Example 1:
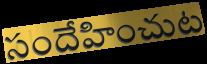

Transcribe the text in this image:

సందేహించుట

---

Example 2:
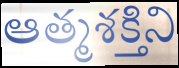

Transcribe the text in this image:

ఆత్మశక్తిని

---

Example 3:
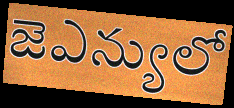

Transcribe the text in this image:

జెఎన్యులో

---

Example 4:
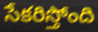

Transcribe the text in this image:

సేకరిస్తోంది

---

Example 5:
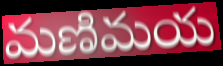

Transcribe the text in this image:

మణిమయ